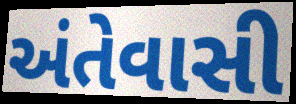
અંતેવાસી